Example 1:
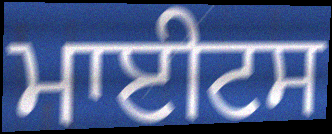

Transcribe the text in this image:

ਮਾਈਟਸ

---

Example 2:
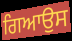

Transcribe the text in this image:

ਗਿਆਉਸ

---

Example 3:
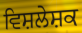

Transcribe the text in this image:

ਵਿਸ਼ਲੇਸ਼ਕ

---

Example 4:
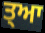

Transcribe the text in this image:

ਤ੍ਆ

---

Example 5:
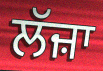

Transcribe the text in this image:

ਲੱਜ਼ਾ